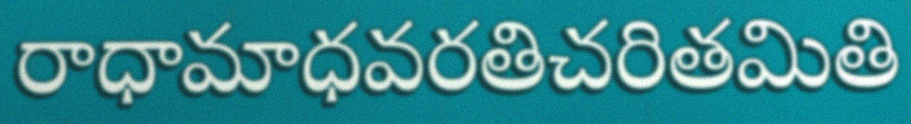
రాధామాధవరతిచరితమితి